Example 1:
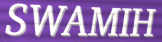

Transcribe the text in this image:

SWAMIH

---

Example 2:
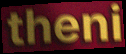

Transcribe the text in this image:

theni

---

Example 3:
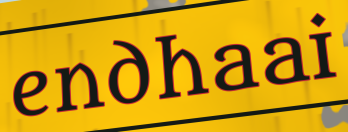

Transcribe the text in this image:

endhaai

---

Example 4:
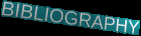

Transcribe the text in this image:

BIBLIOGRAPHY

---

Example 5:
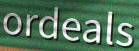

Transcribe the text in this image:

ordeals